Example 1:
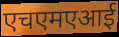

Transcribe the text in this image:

एचएमएआई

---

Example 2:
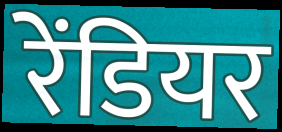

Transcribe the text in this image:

रेंडियर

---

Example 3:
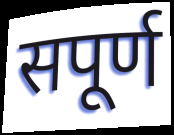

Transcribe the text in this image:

सपूर्ण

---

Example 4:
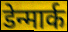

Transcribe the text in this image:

डेन्मार्क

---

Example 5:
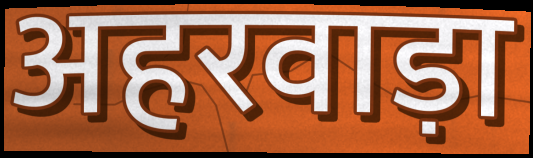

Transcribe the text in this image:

अहरवाड़ा